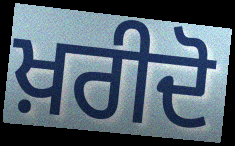
ਖ਼ਰੀਦੋ